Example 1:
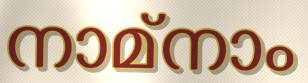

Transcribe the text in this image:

നാമ്നാം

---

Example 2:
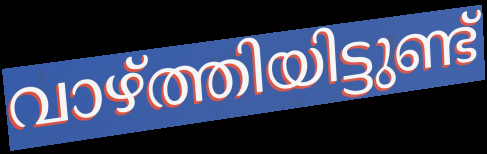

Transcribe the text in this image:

വാഴ്ത്തിയിട്ടുണ്ട്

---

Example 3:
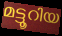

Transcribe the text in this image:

മട്ടൂറിയ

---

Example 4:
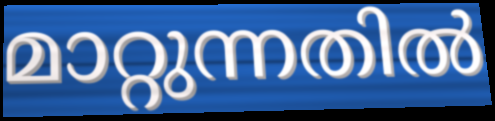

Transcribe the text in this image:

മാറ്റുന്നതിൽ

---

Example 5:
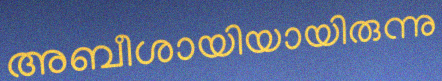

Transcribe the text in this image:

അബീശായിയായിരുന്നു